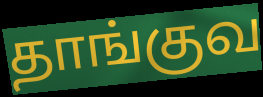
தாங்குவ